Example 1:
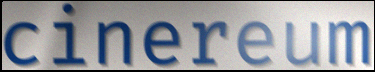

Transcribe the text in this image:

cinereum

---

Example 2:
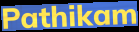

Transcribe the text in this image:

Pathikam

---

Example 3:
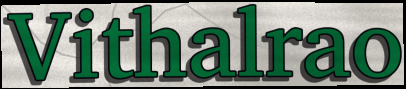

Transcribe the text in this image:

Vithalrao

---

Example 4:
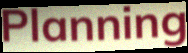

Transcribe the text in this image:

Planning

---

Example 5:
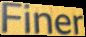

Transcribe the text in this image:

Finer